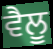
ਵੈਲੂ